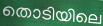
തൊടിയിലെ